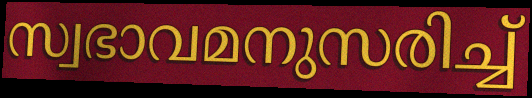
സ്വഭാവമനുസരിച്ച്